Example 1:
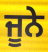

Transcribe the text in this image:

ਜੂਨੇ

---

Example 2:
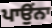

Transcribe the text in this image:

ਪਾਉਂਨਾ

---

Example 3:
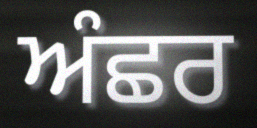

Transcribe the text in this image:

ਅੰਛਰ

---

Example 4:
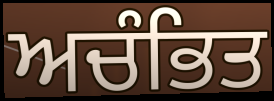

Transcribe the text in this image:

ਅਚੰਭਿਤ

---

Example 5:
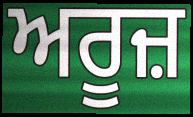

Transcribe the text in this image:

ਅਰੂਜ਼